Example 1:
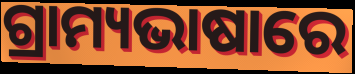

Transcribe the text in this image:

ଗ୍ରାମ୍ୟଭାଷାରେ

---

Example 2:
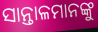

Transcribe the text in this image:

ସାନ୍ତାଳମାନଙ୍କୁ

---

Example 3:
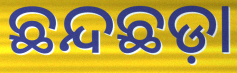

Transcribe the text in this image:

ଛନ୍ଦଛଡ଼ା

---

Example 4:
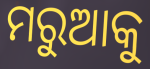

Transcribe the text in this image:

ମରୁଆକୁ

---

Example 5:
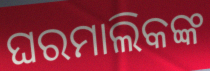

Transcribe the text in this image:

ଘରମାଲିକଙ୍କ